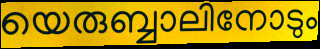
യെരുബ്ബാലിനോടും